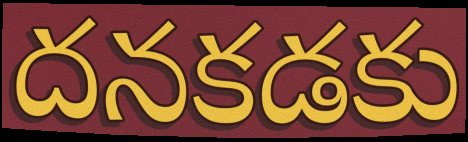
దనకడకు